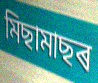
মিছামাছৰ